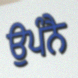
ਉਪੰਨੈ